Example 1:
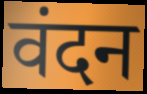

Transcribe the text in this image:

वंदन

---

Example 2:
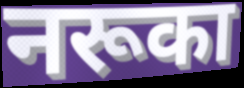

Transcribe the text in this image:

नरूका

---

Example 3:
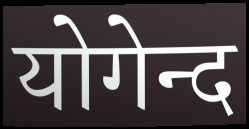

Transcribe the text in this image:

योगेन्द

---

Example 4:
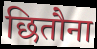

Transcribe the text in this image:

छितौना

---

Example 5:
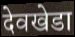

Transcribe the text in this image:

देवखेडा